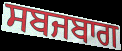
ਸਬਜਬਾਗ